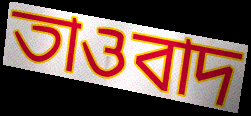
তাওবাদ